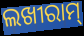
ଲଖୀରାମ୍